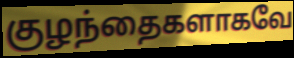
குழந்தைகளாகவே